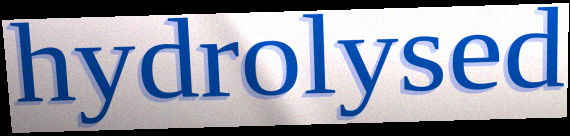
hydrolysed